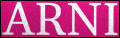
ARNI